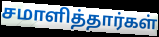
சமாளித்தார்கள்